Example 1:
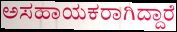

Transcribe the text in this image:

ಅಸಹಾಯಕರಾಗಿದ್ದಾರೆ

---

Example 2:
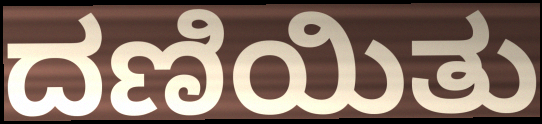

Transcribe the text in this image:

ದಣಿಯಿತು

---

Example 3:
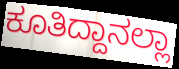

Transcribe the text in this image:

ಕೂತಿದ್ದಾನಲ್ಲಾ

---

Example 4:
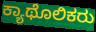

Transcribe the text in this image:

ಕ್ಯಾಥೊಲಿಕರು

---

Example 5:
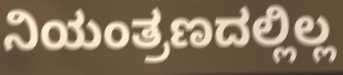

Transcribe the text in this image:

ನಿಯಂತ್ರಣದಲ್ಲಿಲ್ಲ